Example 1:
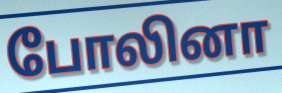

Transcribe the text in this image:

போலினா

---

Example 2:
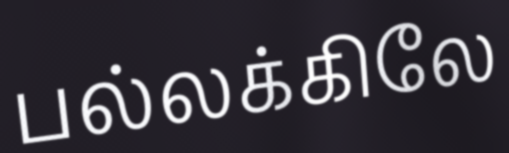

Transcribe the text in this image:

பல்லக்கிலே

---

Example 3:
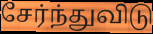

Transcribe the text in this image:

சேர்ந்துவிடு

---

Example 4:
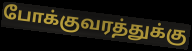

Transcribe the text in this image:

போக்குவரத்துக்கு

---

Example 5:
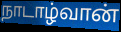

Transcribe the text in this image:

நாடாழ்வான்